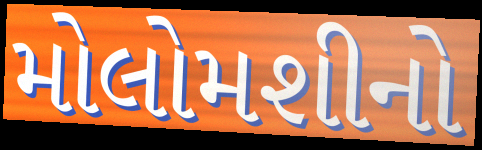
મોલોમશીનો